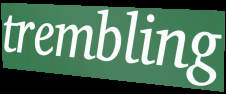
trembling